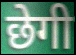
छेगी